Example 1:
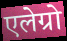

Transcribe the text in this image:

एलेग्रो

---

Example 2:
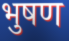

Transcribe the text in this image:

भुषण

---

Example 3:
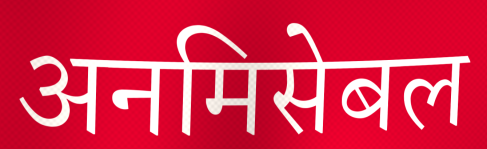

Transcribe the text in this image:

अनमिसेबल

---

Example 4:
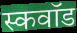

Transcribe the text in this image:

स्कवॉड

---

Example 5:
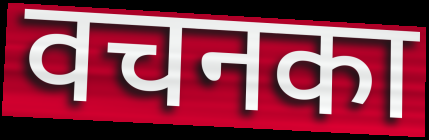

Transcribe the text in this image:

वचनका